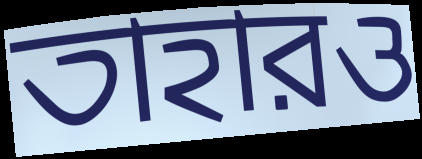
তাহারও